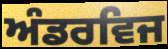
ਅੰਡਰਵਿਜ